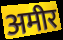
अमीर